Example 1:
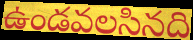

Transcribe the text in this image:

ఉండవలసినది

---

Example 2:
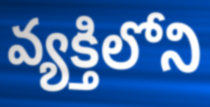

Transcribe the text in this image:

వ్యక్తిలోని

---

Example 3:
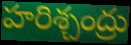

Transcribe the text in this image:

హరిశ్చంద్రు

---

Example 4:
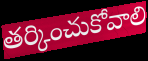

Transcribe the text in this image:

తర్కించుకోవాలి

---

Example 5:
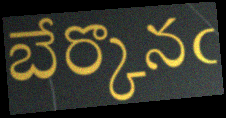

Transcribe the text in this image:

బేర్కొనఁ